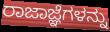
ರಾಜಾಜ್ಞೆಗಳನ್ನು